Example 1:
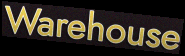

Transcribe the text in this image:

Warehouse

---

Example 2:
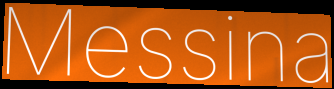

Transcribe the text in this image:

Messina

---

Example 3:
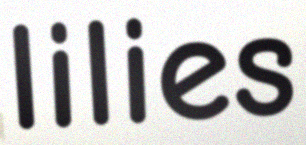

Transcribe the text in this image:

lilies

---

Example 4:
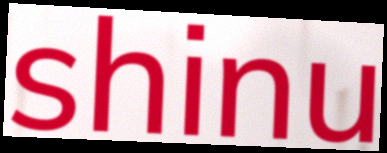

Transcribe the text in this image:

shinu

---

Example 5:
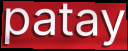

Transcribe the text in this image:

patay